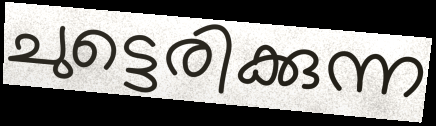
ചുട്ടെരിക്കുന്ന